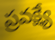
ప్రవక్ష్యే